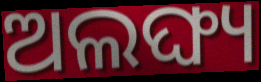
ଅଲଙ୍ଘ୍ୟ